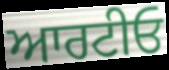
ਆਰਟੀਓ